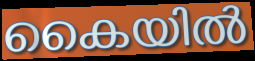
കൈയിൽ